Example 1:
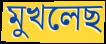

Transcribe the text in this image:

মুখলেছ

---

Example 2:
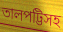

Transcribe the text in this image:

তালপট্টিসহ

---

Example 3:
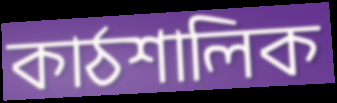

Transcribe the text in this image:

কাঠশালিক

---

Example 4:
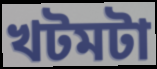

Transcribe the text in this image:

খটমটা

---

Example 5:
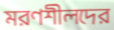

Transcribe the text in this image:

মরণশীলদের